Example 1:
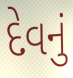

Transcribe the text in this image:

દેવનું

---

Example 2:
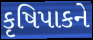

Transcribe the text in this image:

કૃષિપાકને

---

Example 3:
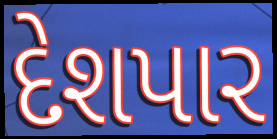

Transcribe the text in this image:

દેશપાર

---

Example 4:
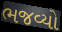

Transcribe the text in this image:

ભજવ્યો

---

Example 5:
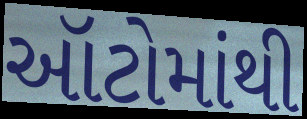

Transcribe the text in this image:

ઑટોમાંથી